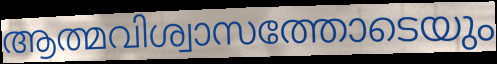
ആത്മവിശ്വാസത്തോടെയും